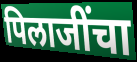
पिलाजींचा